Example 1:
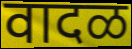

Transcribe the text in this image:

वादळ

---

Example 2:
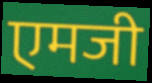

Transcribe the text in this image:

एमजी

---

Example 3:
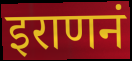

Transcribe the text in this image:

इराणनं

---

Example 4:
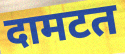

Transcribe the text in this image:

दामटत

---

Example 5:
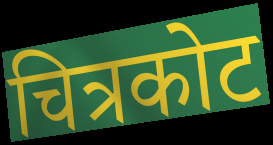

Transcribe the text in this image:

चित्रकोट